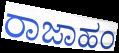
ರಾಜಾಹಂ